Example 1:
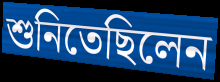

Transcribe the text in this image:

শুনিতেছিলেন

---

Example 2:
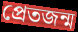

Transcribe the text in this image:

প্রেতজন্ম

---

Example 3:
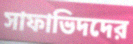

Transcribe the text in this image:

সাফাভিদদের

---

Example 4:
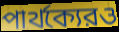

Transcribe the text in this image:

পার্থক্যেরও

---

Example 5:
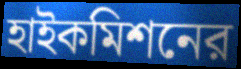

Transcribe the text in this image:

হাইকমিশনের